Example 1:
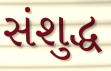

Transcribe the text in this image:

સંશુદ્ધ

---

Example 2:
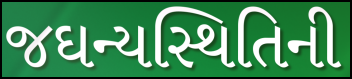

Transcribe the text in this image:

જઘન્યસ્થિતિની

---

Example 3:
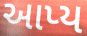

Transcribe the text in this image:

આપ્ય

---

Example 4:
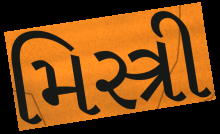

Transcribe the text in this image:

મિસ્ત્રી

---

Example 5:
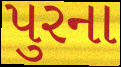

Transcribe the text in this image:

પુરના